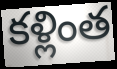
కళ్లింత